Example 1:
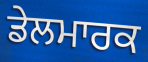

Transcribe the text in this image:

ਡੇਲਮਾਰਕ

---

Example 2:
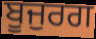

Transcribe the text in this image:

ਬੂਜੁਰਗ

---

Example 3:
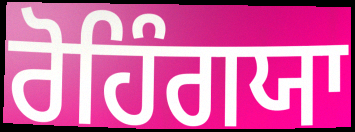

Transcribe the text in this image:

ਰੋਹਿੰਗਯਾ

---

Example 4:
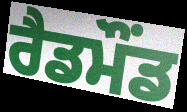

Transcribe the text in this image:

ਰੈਡਮੌਂਡ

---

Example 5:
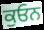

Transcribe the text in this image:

ਕੁਓਨ